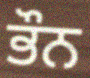
ਭੌਨ